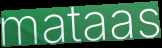
mataas